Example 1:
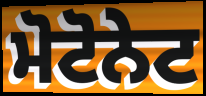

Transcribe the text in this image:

ਮੋਟੋਨੇਟ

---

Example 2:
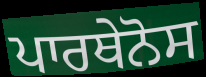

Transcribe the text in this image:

ਪਾਰਥੇਨੋਸ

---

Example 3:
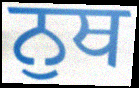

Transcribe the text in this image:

ਨੁਥ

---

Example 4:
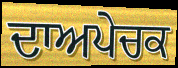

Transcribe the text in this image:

ਦਾਅਪੇਚਕ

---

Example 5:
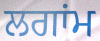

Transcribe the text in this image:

ਲਗਾਂਮ